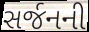
સર્જનની